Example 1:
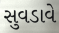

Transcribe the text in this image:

સુવડાવે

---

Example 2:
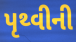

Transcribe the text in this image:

પૃથ્વીની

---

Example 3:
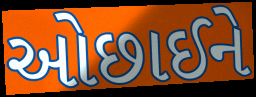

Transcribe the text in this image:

ઓછાઈને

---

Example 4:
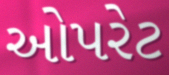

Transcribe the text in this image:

ઓપરેટ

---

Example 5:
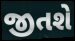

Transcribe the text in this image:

જીતશે